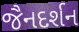
જૈનદર્શન